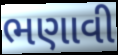
ભણાવી